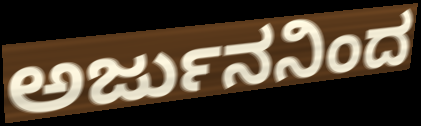
ಅರ್ಜುನನಿಂದ